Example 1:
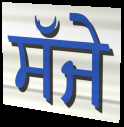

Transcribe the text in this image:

ਸੱਜੇ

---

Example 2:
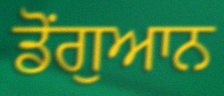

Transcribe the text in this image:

ਡੋਂਗੁਆਨ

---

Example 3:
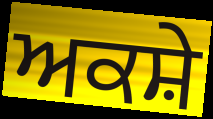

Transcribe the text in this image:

ਅਕਸ਼ੇ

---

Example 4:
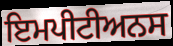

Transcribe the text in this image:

ਇਮਪੀਟੀਅਨਸ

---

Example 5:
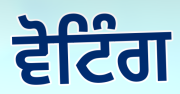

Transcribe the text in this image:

ਵੋਟਿੰਗ